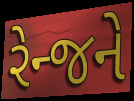
રેન્જને